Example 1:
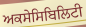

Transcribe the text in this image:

ਅਕਸੇਸਿਬਿਲਿਟੀ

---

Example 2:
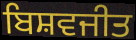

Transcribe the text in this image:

ਬਿਸ਼ਵਜੀਤ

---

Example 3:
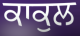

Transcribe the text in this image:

ਕਾਕੁਲ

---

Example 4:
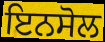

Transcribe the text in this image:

ਇਨਸੋਲ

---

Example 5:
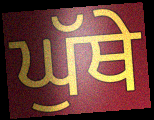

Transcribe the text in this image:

ਘੁੱਥੇ